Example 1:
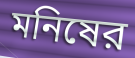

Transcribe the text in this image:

মনিষের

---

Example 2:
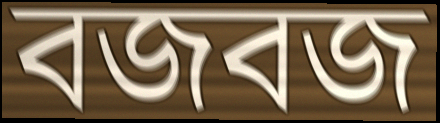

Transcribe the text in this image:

বজবজ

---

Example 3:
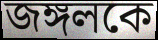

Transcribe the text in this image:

জঙ্গলকে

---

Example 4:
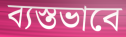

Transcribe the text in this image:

ব্যস্তভাবে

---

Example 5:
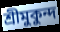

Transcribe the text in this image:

শ্রীমুকুন্দ